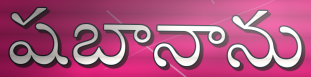
షబానాను